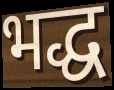
भद्ध